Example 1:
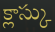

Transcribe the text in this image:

క్లాస్కు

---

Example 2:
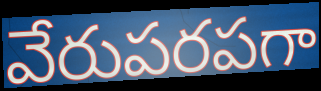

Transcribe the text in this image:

వేరుపరపగా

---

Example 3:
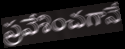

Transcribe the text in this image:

ప్రవేశించగానే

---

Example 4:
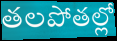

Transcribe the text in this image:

తలపోతల్లో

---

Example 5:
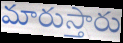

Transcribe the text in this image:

మారుస్తారు